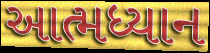
આત્મધ્યાન